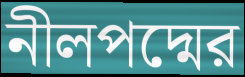
নীলপদ্মের